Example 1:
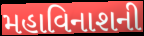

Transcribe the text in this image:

મહાવિનાશની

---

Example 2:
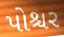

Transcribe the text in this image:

પોશ્ચર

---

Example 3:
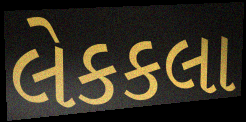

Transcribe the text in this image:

લેકકલા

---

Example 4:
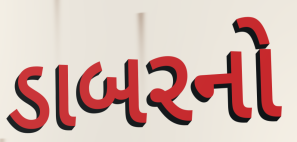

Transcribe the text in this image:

ડાબરનો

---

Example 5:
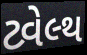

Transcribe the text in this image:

ટ્વેલ્થ